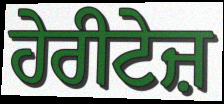
ਹੇਰੀਟੇਜ਼